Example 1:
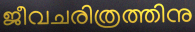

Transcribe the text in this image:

ജീവചരിത്രത്തിനു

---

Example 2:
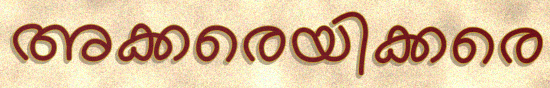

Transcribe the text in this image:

അക്കരെയിക്കരെ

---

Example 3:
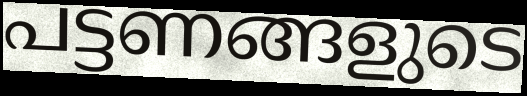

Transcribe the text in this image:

പട്ടണങ്ങളുടെ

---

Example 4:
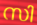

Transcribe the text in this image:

സി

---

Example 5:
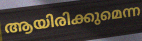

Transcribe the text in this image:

ആയിരിക്കുമെന്ന